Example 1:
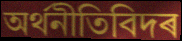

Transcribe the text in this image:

অৰ্থনীতিবিদৰ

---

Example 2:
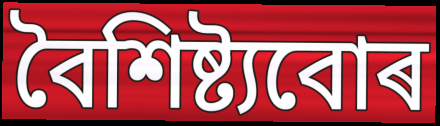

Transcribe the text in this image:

বৈশিষ্ট্যবোৰ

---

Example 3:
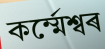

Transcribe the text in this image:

কৰ্ম্মেশ্বৰ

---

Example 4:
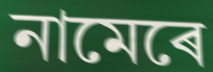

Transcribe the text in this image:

নামেৰে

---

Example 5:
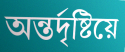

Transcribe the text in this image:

অন্তৰ্দৃষ্টিয়ে